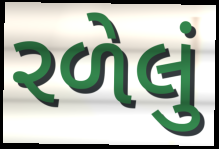
રળેલું